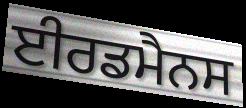
ਈਰਡਮੈਨਸ